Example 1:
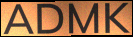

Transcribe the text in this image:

ADMK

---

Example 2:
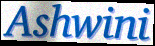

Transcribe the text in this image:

Ashwini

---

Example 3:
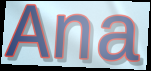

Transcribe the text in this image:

Ana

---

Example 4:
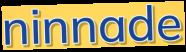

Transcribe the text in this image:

ninnade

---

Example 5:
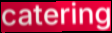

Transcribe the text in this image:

catering